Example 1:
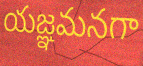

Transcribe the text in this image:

యజ్ఞమనగా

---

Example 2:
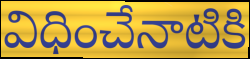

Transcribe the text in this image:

విధించేనాటికి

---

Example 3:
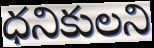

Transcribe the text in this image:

ధనికులని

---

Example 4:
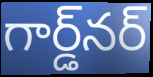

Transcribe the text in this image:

గార్డ్‌నర్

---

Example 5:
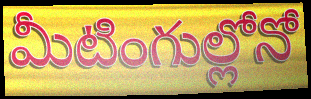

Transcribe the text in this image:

మీటింగుల్లోనో